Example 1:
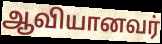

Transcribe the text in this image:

ஆவியானவர்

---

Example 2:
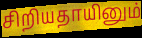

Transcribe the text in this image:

சிறியதாயினும்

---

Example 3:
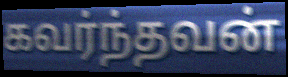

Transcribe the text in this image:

கவர்ந்தவன்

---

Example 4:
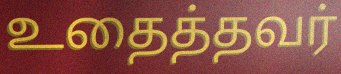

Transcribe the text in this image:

உதைத்தவர்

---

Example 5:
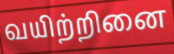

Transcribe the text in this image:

வயிற்றினை